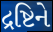
દ્રષ્ટિને